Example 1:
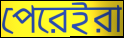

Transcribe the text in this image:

পেরেইরা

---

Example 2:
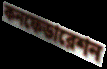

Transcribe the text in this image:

কনফেডারেশন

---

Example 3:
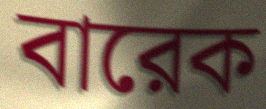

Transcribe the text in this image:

বারেক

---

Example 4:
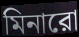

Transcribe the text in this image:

মিনারো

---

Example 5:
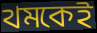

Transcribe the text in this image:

থমকেই